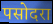
पसोदरा